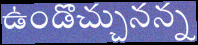
ఉండొచ్చునన్న